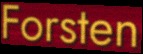
Forsten